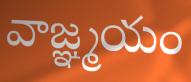
వాజ్ఞ్మయం